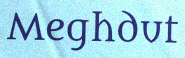
Meghdut